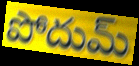
పోదుమ్